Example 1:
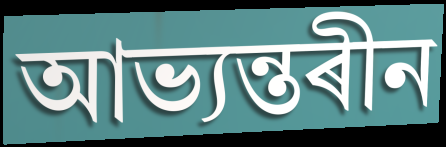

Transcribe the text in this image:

আভ্যন্তৰীন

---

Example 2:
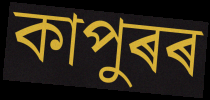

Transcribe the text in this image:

কাপুৰৰ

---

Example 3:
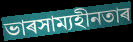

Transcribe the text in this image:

ভাৰসাম্যহীনতাৰ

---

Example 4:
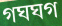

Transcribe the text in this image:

গঘঘগ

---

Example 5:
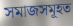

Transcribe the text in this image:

সমাজসমূহত